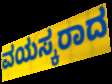
ವಯಸ್ಕರಾದ